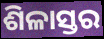
ଶିଳାସ୍ତର